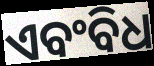
ଏବଂବିଧ